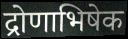
द्रोणाभिषेक